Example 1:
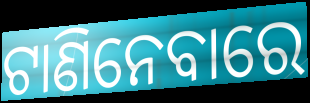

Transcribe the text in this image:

ଟାଣିନେବାରେ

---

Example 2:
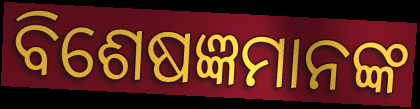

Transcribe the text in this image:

ବିଶେଷଜ୍ଞମାନଙ୍କ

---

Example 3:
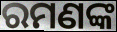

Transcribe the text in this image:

ରମଣଙ୍କ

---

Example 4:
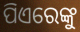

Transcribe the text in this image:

ପିଏରେଙ୍କୁ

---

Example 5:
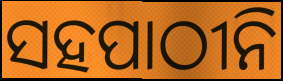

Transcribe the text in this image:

ସହପାଠୀନି